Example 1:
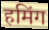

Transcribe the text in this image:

हमिंग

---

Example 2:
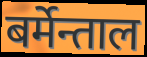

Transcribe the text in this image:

बर्मेन्ताल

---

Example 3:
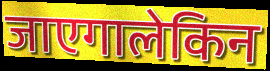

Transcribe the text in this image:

जाएगालेकिन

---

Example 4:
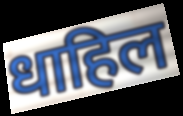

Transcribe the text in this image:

धाहिल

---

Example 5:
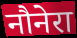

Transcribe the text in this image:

नौनेरा